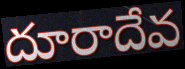
దూరాదేవ